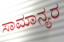
ಸಾಮಾನ್ಯರ